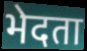
भेदता